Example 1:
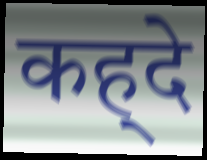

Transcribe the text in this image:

कह्दे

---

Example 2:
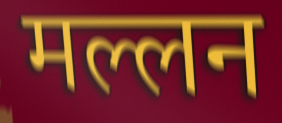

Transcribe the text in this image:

मल्लन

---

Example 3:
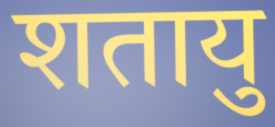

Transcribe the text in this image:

शतायु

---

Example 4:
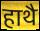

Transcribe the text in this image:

हाथै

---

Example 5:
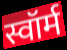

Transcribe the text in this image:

स्वॉर्म